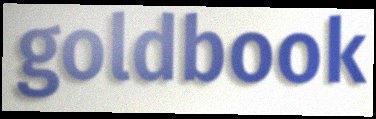
goldbook